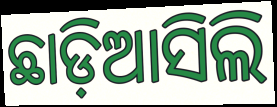
ଛାଡ଼ିଆସିଲି